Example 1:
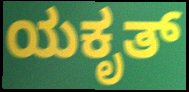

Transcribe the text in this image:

ಯಕೃತ್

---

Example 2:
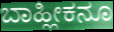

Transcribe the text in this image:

ಬಾಹ್ಲೀಕನೂ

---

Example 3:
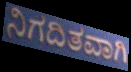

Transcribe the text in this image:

ನಿಗದಿತವಾಗಿ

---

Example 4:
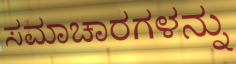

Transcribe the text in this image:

ಸಮಾಚಾರಗಳನ್ನು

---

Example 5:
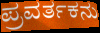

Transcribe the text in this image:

ಪ್ರವರ್ತಕನು